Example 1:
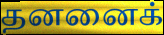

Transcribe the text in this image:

தனனைக்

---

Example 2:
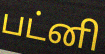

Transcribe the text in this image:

பட்னி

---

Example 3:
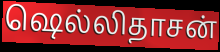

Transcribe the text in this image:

ஷெல்லிதாசன்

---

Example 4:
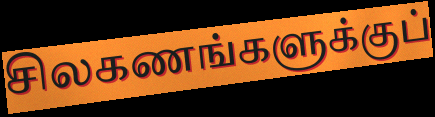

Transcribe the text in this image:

சிலகணங்களுக்குப்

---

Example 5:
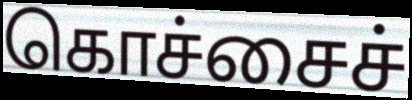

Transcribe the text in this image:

கொச்சைச்